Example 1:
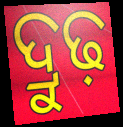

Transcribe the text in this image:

ଦ୍ରୁଢ଼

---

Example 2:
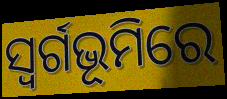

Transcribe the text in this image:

ସ୍ଵର୍ଗଭୂମିରେ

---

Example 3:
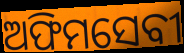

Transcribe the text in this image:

ଅଫିମସେବୀ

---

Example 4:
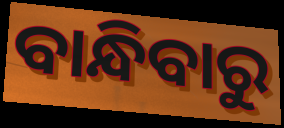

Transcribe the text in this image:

ବାନ୍ଧିବାରୁ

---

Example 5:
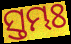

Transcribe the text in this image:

ସ୍ତମ୍ଭଃ